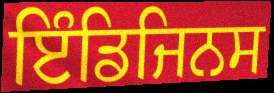
ਇੰਡਿਜਿਨਸ